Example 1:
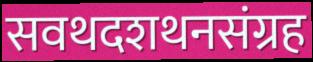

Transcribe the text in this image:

सवथदशथनसंग्रह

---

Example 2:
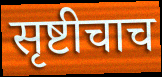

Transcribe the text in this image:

सृष्टीचाच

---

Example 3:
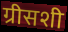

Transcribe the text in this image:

ग्रीसशी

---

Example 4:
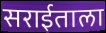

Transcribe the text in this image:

सराईताला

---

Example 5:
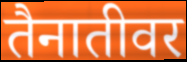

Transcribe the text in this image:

तैनातीवर